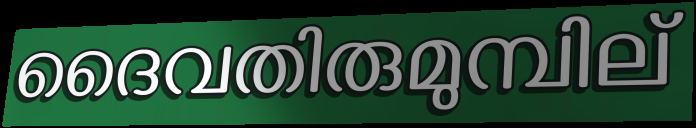
ദൈവതിരുമുമ്പില്